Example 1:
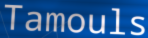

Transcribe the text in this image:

Tamouls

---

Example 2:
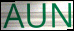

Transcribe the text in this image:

AUN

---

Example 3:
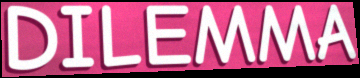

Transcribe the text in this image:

DILEMMA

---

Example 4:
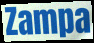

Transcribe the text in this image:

Zampa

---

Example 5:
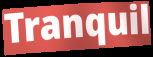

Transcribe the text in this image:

Tranquil